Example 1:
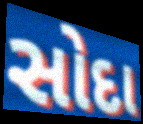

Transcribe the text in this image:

સોદા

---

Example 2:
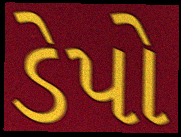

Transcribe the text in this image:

ડેપો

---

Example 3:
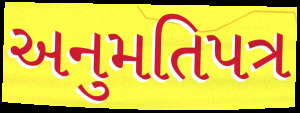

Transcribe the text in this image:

અનુમતિપત્ર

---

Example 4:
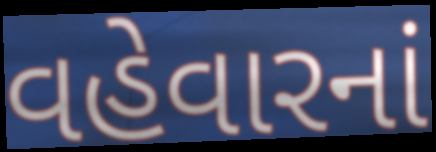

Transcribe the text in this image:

વહેવારનાં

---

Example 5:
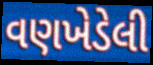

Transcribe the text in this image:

વણખેડેલી